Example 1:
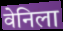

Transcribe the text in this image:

वेनिला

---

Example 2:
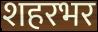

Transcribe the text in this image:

शहरभर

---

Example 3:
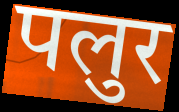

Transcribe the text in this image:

पलुर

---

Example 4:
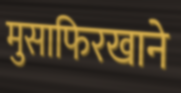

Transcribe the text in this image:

मुसाफिरखाने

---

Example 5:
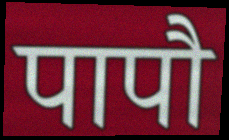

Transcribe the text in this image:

पापौ